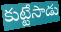
కుట్టేసాడు